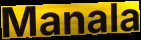
Manala